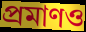
প্রমাণও